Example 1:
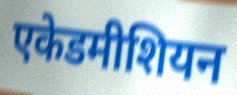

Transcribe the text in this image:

एकेडमीशियन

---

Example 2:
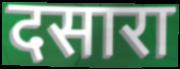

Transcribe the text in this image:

दसारा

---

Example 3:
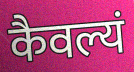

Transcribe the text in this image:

कैवल्यं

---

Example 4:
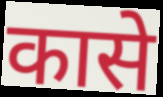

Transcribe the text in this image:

कासे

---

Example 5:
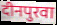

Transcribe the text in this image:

दीनपुरवा